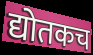
द्योतकच